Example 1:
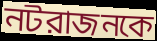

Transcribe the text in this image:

নটরাজনকে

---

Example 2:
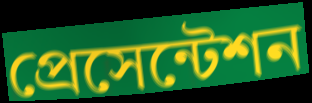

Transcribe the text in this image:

প্রেসেন্টেশন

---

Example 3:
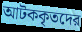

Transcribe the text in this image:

আটককৃতদের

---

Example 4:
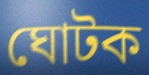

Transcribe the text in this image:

ঘোটক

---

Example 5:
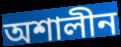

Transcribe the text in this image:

অশালীন